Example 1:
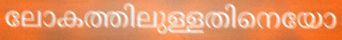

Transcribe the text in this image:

ലോകത്തിലുള്ളതിനെയോ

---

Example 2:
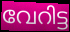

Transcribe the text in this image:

വേറിട്ട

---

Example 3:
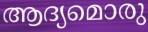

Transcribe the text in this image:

ആദ്യമൊരു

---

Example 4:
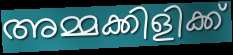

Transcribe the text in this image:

അമ്മക്കിളിക്ക്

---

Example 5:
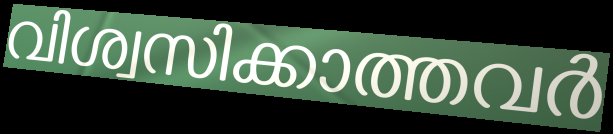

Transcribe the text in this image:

വിശ്വസിക്കാത്തവർ